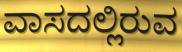
ವಾಸದಲ್ಲಿರುವ